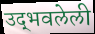
उद्‌भवलेली